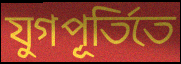
যুগপূর্তিতে